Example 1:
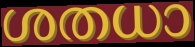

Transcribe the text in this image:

ശതധാ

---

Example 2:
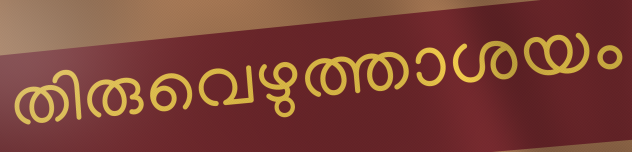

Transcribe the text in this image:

തിരുവെഴുത്താശയം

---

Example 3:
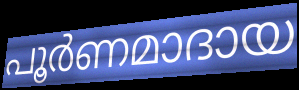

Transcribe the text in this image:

പൂർണമാദായ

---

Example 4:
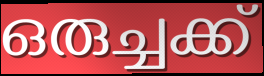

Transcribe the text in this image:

ഒരുച്ചക്ക്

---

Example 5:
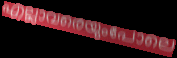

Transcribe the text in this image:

എല്ലാവരെയുംപോലെ